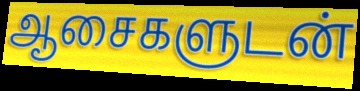
ஆசைகளுடன்